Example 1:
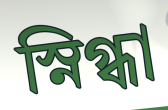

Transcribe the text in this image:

স্নিগ্ধা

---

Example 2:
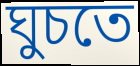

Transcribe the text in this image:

ঘুচতে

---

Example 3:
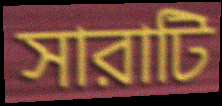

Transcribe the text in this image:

সারাটি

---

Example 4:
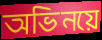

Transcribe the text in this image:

অভিনয়ে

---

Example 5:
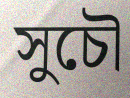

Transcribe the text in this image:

সুচৌ